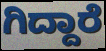
ಗಿದ್ದಾರೆ